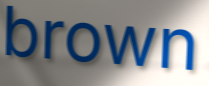
brown